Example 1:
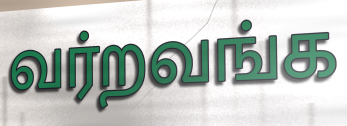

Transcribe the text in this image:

வர்றவங்க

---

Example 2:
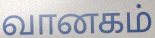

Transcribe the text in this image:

வானகம்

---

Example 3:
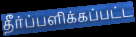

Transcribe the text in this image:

தீர்ப்பளிக்கப்பட்ட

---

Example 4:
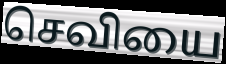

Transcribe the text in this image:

செவியை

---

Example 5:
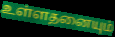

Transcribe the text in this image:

உள்ளதனையும்